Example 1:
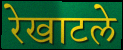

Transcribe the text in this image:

रेखाटले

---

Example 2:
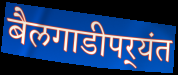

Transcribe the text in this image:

बैलगाडीपर्यंत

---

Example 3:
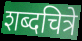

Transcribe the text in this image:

शब्दचित्रे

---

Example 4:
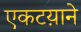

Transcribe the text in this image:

एकटय़ाने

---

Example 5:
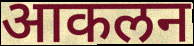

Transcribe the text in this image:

आकलन